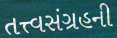
તત્ત્વસંગ્રહની